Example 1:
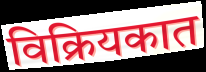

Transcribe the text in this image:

विक्रियकात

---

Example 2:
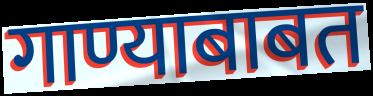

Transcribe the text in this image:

गाण्याबाबत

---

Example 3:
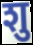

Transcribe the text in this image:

शु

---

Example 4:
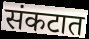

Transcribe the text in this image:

संकटात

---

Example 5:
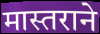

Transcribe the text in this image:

मास्तराने